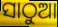
ସାଠୁଆ